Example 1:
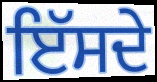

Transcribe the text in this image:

ਇੱਸਦੇ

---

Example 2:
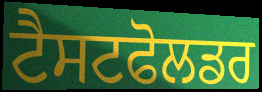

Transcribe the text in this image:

ਟੈਸਟਫੋਲਡਰ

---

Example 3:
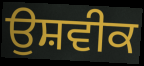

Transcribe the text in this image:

ਉਸ਼ਵੀਕ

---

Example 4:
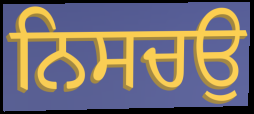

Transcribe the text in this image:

ਨਿਸਚਉ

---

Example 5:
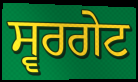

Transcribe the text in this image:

ਸ੍ਵਰਗੇਟ